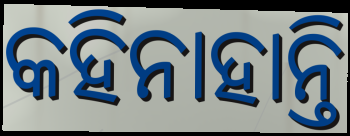
କହିନାହାନ୍ତି